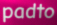
padto